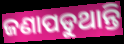
ଜଣାପଡୁଥାନ୍ତି